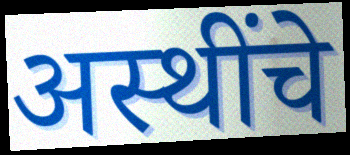
अस्थींचे